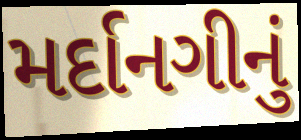
મર્દાનગીનું